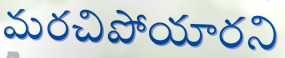
మరచిపోయారని